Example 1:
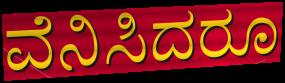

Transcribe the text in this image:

ವೆನಿಸಿದರೂ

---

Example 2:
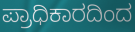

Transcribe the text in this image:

ಪ್ರಾಧಿಕಾರದಿಂದ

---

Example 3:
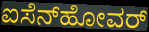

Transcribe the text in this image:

ಐಸೆನ್‍ಹೋವರ್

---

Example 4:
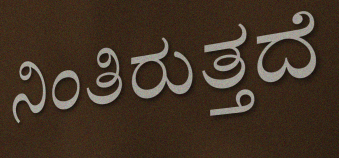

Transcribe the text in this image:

ನಿಂತಿರುತ್ತದೆ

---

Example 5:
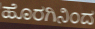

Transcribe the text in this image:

ಹೊರಗಿನಿಂದ